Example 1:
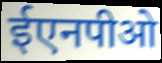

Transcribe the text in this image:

ईएनपीओ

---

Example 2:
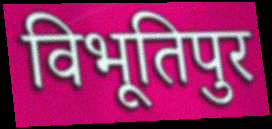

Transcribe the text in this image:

विभूतिपुर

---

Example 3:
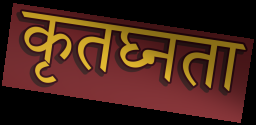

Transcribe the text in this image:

कृतघ्नता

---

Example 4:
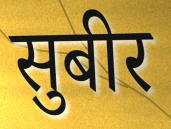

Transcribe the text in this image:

सुबीर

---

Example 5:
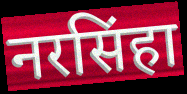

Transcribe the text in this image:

नरसिंहा